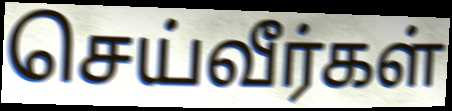
செய்வீர்கள்